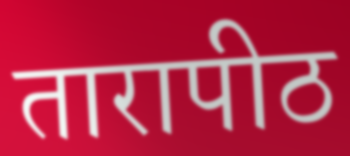
तारापीठ